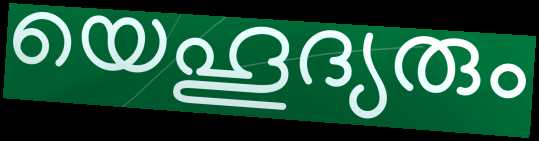
യെഹൂദ്യരും